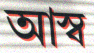
আস্ব